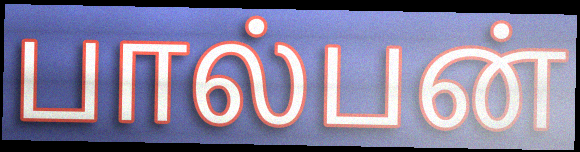
பால்பன்